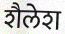
शैलेश